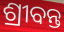
ଶ୍ରୀବନ୍ତ